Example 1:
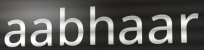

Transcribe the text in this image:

aabhaar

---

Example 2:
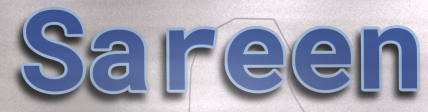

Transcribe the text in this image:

Sareen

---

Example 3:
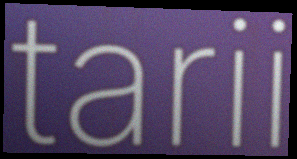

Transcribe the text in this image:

tarii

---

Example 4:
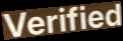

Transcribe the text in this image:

Verified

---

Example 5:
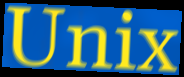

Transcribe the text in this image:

Unix